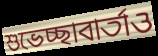
শুভেচ্ছাবার্তাও